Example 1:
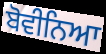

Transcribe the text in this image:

ਬੋਵੀਨਿਆ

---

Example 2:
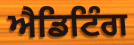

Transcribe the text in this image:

ਐਡਿਟਿੰਗ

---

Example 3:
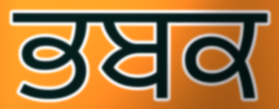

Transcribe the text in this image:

ਭਬਕ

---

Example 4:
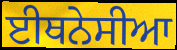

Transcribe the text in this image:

ਈਥਨੇਸੀਆ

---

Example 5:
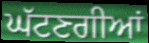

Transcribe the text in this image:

ਘੱਟਣਗੀਆਂ